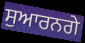
ਸੁਆਰਨਗੇ